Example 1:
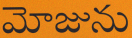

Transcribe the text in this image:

మోజును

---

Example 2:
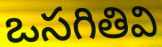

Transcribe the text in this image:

ఒసగితివి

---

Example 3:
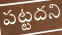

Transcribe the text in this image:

పట్టదని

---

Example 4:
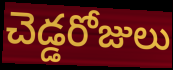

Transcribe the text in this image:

చెడ్డరోజులు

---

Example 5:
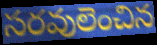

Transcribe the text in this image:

సరవులెంచిన